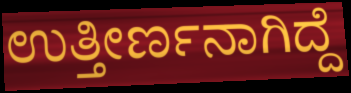
ಉತ್ತೀರ್ಣನಾಗಿದ್ದೆ